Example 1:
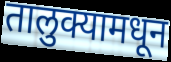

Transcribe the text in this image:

तालुक्यामधून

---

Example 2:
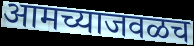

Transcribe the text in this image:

आमच्याजवळच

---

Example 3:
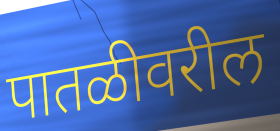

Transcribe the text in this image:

पातळीवरील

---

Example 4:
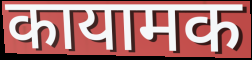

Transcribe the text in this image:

कायामक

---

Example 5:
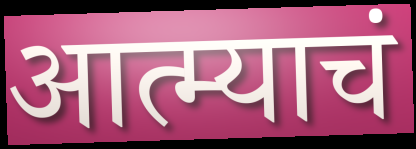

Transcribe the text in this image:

आत्म्याचं